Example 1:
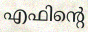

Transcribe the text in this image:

എഫിന്റെ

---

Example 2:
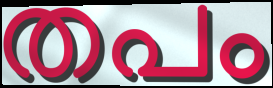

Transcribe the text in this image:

തപം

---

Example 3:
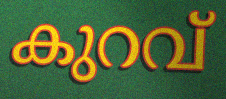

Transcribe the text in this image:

കുറവ്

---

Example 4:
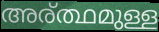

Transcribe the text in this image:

അര്ത്ഥമുള്ള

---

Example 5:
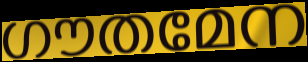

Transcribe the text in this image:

ഗൗതമേന